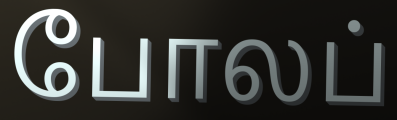
போலப்